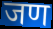
जण